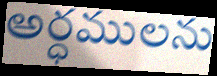
అర్ధములను